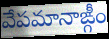
వేపమానాఙ్గీం